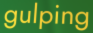
gulping